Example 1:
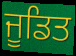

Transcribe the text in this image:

ਜੂਡਿਤ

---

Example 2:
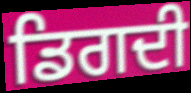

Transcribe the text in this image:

ਡਿਗਦੀ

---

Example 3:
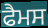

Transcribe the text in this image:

ਫੈਮਸ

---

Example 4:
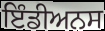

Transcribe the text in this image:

ਇੰਡੀਅਨਸ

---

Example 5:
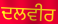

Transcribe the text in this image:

ਦਲਵੀਰ